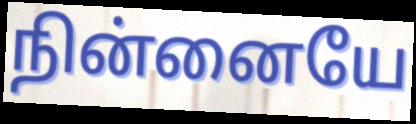
நின்னையே